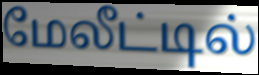
மேலீட்டில்